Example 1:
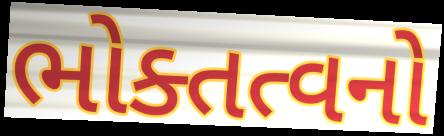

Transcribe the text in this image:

ભોક્તત્વનો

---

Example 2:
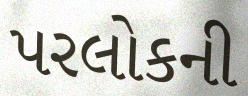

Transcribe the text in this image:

પરલોકની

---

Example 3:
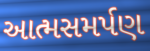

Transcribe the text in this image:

આત્મસમર્પણ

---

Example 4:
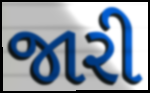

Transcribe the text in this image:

જારી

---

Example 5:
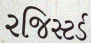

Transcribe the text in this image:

રજિસ્ટર્ડ